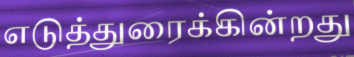
எடுத்துரைக்கின்றது